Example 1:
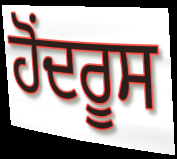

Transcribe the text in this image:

ਹੋਂਦਰੂਸ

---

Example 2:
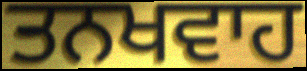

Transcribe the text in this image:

ਤਨਖਵਾਹ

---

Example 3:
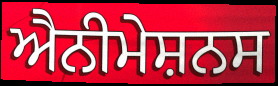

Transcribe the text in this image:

ਐਨੀਮੇਸ਼ਨਸ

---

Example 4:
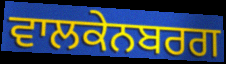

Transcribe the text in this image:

ਵਾਲਕੇਨਬਰਗ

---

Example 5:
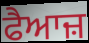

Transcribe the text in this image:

ਫੈਆਜ਼